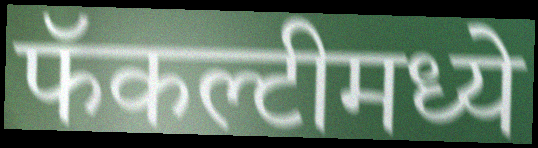
फॅकल्टीमध्ये